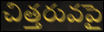
చిత్తరువపై